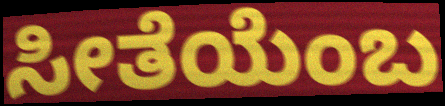
ಸೀತೆಯೆಂಬ